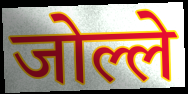
जोल्ले